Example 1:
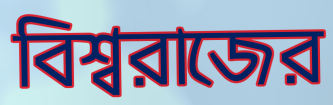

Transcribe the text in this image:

বিশ্বরাজের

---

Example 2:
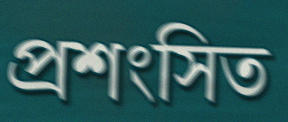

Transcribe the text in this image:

প্রশংসিত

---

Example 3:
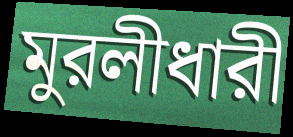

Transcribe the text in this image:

মুরলীধারী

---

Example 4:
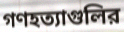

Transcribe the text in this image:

গণহত্যাগুলির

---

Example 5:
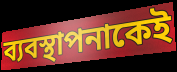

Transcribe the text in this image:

ব্যবস্থাপনাকেই